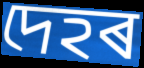
দেহৰ